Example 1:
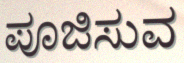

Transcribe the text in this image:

ಪೂಜಿಸುವ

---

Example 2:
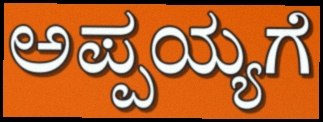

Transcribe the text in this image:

ಅಪ್ಪಯ್ಯಗೆ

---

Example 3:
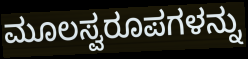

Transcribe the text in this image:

ಮೂಲಸ್ವರೂಪಗಳನ್ನು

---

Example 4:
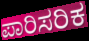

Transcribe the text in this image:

ಪಾರಿಸರಿಕ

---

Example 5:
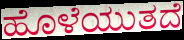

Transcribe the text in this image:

ಹೊಳೆಯುತದೆ